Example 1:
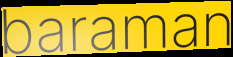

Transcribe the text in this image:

baraman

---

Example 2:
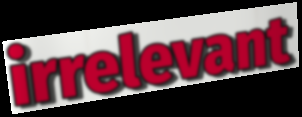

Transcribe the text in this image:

irrelevant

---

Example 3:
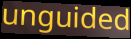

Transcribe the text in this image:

unguided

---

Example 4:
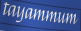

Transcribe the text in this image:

tayammum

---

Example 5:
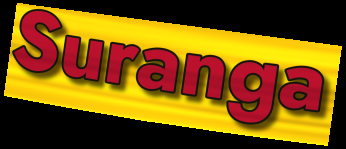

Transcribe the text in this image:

Suranga